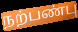
நற்பண்பு